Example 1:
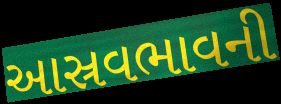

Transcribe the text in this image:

આસ્રવભાવની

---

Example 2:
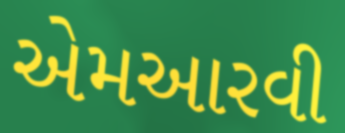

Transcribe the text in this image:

એમઆરવી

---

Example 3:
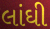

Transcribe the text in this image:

લાંઘી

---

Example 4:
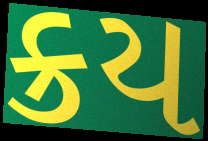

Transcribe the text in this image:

ક્રય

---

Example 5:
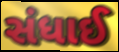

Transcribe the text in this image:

સંધાઈ